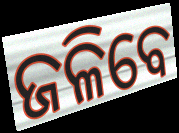
ଜଳିବେ